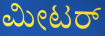
ಮೀಟರ್